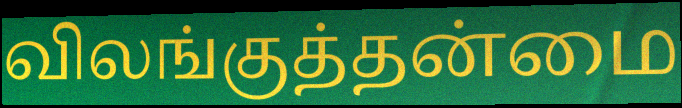
விலங்குத்தன்மை